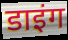
डाइंग